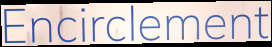
Encirclement